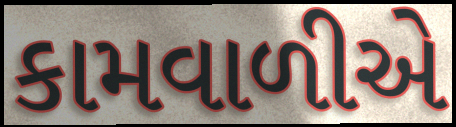
કામવાળીએ